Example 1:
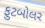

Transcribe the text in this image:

ફુટબોલર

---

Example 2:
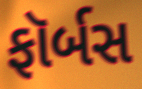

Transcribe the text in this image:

ફૉર્બસ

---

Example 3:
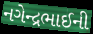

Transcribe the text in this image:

નગેન્દ્રભાઈની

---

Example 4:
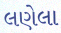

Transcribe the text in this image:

લણેલા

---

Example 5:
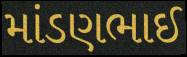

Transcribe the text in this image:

માંડણભાઈ